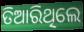
ତିଆରିଥିଲେ